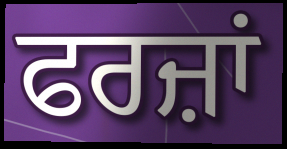
ਫਰਜ਼ਾਂ